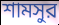
শামসুর